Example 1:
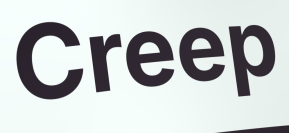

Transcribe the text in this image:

Creep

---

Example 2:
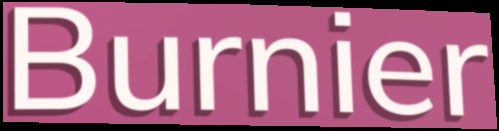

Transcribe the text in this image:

Burnier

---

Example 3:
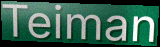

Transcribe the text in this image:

Teiman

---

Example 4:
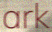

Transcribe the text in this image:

ark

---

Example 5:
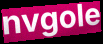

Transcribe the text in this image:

nvgole